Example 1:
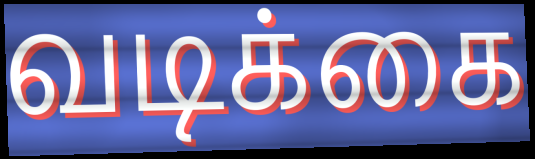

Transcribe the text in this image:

வடிக்கை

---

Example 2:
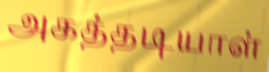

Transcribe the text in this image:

அகத்தடியாள்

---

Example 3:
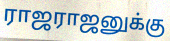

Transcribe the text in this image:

ராஜராஜனுக்கு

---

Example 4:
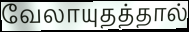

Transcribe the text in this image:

வேலாயுதத்தால்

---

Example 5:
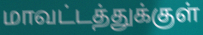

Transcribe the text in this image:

மாவட்டத்துக்குள்